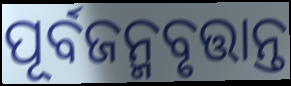
ପୂର୍ବଜନ୍ମବୃତ୍ତାନ୍ତ